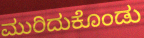
ಮುರಿದುಕೊಂಡು